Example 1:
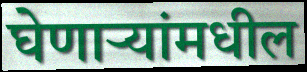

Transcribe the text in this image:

घेणाऱ्यांमधील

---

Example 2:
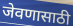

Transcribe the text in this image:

जेवणासाठी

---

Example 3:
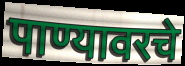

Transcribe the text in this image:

पाण्यावरचे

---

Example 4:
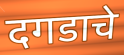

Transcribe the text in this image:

दगडाचे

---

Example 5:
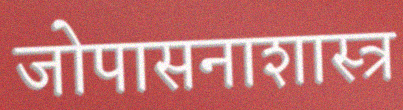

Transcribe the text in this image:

जोपासनाशास्त्र